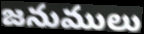
జనుములు